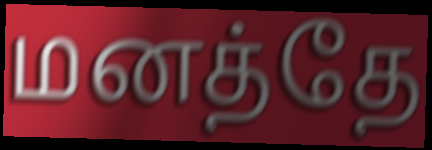
மனத்தே